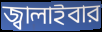
জ্বালাইবার